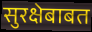
सुरक्षेबाबत